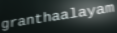
granthaalayam